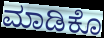
ಮಾಡಿಕೊ